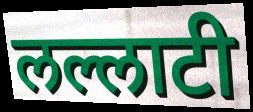
लल्लाटी